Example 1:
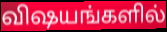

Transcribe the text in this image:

விஷயங்களில்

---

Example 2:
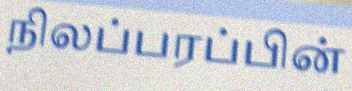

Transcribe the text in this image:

நிலப்பரப்பின்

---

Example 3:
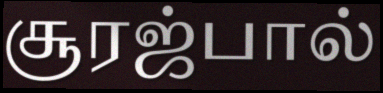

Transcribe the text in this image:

சூரஜ்பால்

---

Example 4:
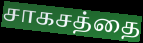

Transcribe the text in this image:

சாகசத்தை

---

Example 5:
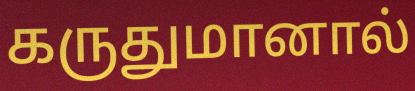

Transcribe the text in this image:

கருதுமானால்